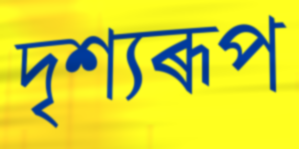
দৃশ্যৰূপ